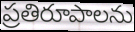
ప్రతిరూపాలను